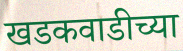
खडकवाडीच्या